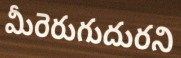
మీరెరుగుదురని